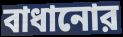
বাধানোর